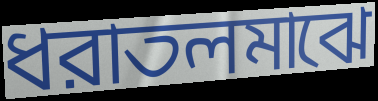
ধরাতলমাঝে